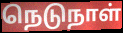
நெடுநாள்